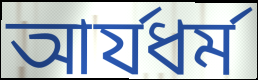
আর্যধর্ম